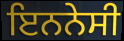
ਇਨਨੇਸੀ